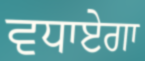
ਵਧਾਏਗਾ